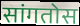
सांगतोस